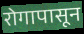
रोगापासून